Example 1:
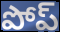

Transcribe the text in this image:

పోప్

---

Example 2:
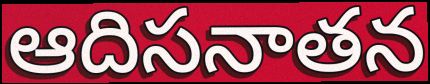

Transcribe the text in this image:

ఆదిసనాతన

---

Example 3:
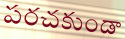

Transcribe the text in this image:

పరచకుండా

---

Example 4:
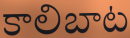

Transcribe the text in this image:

కాలిబాట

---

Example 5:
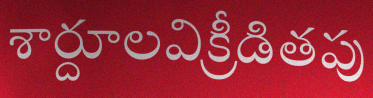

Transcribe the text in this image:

శార్దూలవిక్రీడితపు